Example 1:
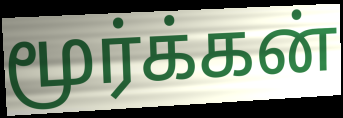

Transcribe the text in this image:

மூர்க்கன்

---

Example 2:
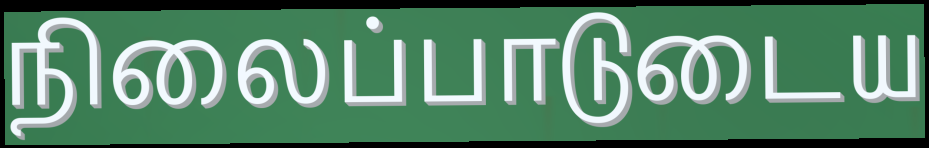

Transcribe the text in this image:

நிலைப்பாடுடைய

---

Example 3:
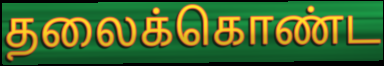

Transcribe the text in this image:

தலைக்கொண்ட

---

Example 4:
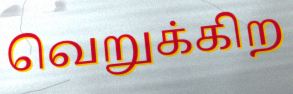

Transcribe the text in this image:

வெறுக்கிற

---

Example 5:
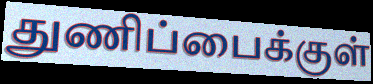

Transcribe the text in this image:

துணிப்பைக்குள்